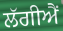
ਲੱਗੀਐਂ